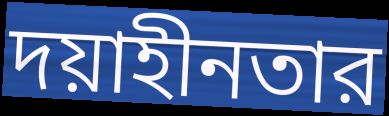
দয়াহীনতার